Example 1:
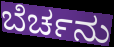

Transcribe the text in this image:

ಬೆರ್ಚನು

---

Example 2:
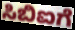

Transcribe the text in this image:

ಸಿಬಿಐಗೆ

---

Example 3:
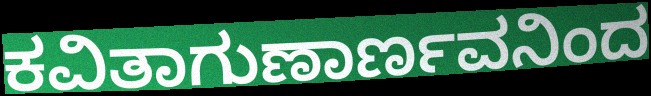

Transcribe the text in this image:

ಕವಿತಾಗುಣಾರ್ಣವನಿಂದ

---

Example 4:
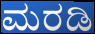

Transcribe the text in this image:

ಮರಡಿ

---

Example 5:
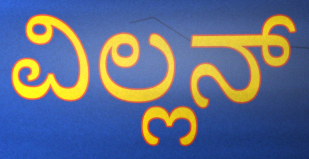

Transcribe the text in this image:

ವಿಲ್ಲನ್